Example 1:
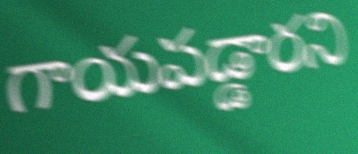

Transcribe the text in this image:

గాయపడ్డారని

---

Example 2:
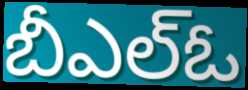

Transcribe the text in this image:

బీఎల్ఓ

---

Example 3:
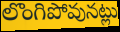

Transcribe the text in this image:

లొంగిపోవునట్లు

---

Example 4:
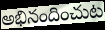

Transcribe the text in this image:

అభినందించుట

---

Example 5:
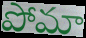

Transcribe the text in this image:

పోమా